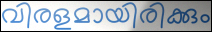
വിരളമായിരിക്കും